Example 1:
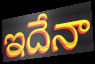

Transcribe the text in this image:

ఇదేనా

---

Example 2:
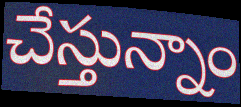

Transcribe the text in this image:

చేస్తున్నాం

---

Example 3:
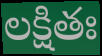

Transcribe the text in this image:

లక్షితః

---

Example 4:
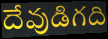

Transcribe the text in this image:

దేవుడిగది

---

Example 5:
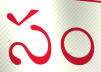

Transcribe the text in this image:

సం